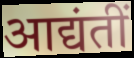
आद्यंतीं